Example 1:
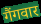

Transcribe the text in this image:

गैंगवार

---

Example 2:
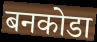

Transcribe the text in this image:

बनकोडा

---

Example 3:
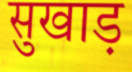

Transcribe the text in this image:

सुखाड़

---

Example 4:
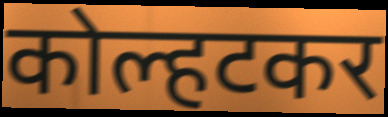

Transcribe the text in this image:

कोल्हटकर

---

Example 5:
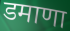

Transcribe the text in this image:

डमाणा